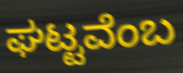
ಘಟ್ಟವೆಂಬ